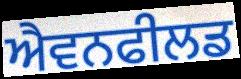
ਐਵਨਫੀਲਡ